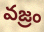
వజ్రం